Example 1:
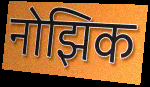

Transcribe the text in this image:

नोझिक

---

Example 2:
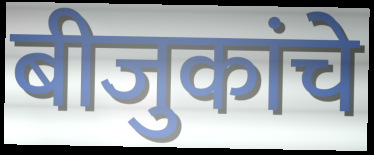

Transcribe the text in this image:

बीजुकांचे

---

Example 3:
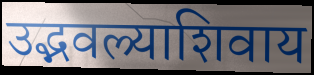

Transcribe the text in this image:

उद्भवल्याशिवाय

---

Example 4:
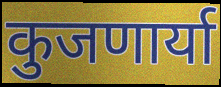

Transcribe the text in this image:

कुजणार्या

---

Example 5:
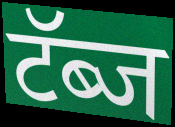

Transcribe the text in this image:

टॅब्ज